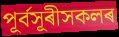
পূৰ্বসূৰীসকলৰ